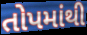
તોપમાંથી